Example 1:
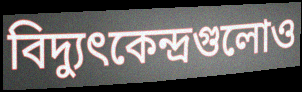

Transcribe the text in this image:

বিদ্যুৎকেন্দ্রগুলোও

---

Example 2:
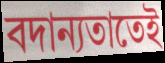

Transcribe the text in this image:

বদান্যতাতেই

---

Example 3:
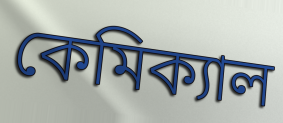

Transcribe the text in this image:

কেমিক্যাল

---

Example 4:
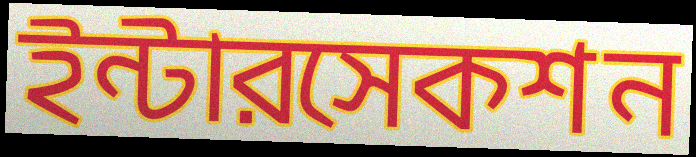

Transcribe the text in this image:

ইন্টারসেকশন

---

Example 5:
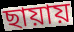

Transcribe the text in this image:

ছায়ায়